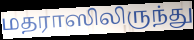
மதராஸிலிருந்து